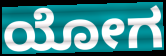
ಯೋಗ